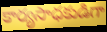
కార్యసాధకుడిగా